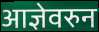
आज्ञेवरुन